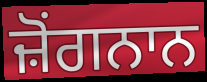
ਜ਼ੋਂਗਨਾਨ